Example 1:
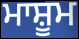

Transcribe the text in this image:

ਮਾਸ਼ੂਮ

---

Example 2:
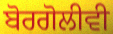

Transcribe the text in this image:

ਬੋਰਗੋਲੀਵੀ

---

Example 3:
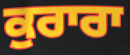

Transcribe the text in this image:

ਕੁਰਾਰਾ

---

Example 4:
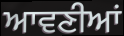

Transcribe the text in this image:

ਆਵਣੀਆਂ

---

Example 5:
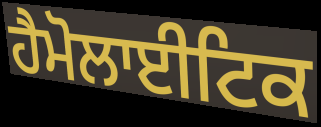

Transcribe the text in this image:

ਹੈਮੋਲਾਈਟਿਕ